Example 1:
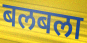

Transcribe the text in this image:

बलबला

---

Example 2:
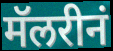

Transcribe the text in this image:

मॅलरीनं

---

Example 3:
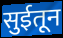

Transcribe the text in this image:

सुईतून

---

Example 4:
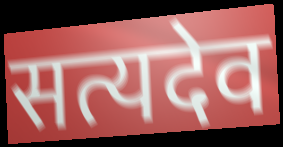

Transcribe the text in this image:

सत्यदेव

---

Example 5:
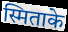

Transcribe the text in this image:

स्मिताके